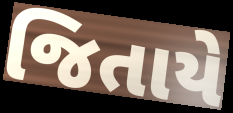
જિતાયે